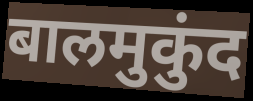
बालमुकुंद